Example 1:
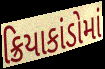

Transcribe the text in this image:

ક્રિયાકાંડોમાં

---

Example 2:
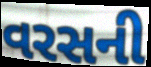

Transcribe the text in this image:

વરસની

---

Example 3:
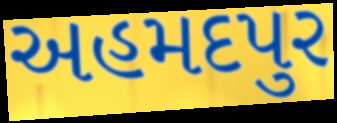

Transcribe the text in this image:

અહમદપુર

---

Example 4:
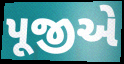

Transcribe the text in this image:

પૂજીએ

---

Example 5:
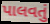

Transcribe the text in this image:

પાલવતું